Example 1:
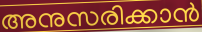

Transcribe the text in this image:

അനുസരിക്കാൻ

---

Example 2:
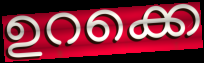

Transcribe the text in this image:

ഉറക്കെ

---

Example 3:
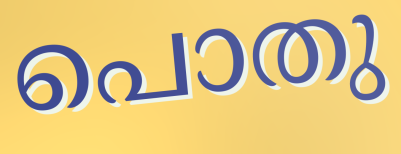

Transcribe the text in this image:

പൊതു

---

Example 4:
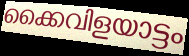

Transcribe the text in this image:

ക്കൈവിളയാട്ടം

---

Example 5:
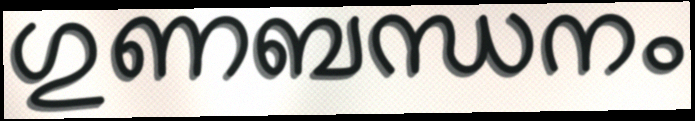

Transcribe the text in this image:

ഗുണബന്ധനം